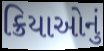
ક્રિયાઓનું